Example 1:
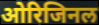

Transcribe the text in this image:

ओरिजिनल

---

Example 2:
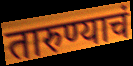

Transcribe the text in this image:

तारुण्याचं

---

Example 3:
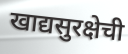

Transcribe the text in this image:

खाद्यसुरक्षेची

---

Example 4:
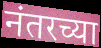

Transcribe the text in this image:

नंतरच्या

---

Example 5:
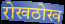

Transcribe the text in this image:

रोखठोख